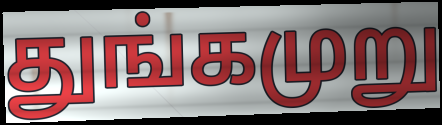
துங்கமுறு